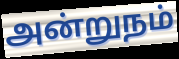
அன்றுநம்